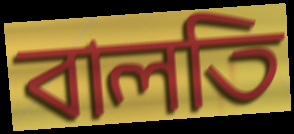
বালতি